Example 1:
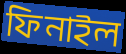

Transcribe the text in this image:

ফিনাইল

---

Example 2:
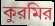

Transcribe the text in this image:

কুরমির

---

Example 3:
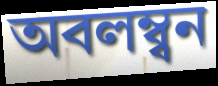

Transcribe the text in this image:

অবলম্ব্বন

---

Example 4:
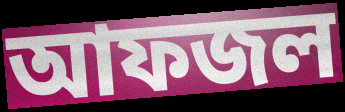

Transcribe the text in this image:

আফজল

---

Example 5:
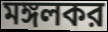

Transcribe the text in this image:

মঙ্গলকর